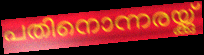
പതിനൊന്നരയ്ക്കു്